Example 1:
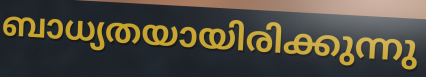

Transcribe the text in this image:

ബാധ്യതയായിരിക്കുന്നു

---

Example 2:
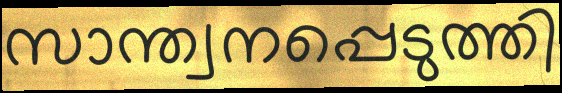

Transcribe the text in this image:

സാന്ത്വനപ്പെടുത്തി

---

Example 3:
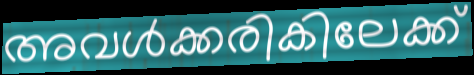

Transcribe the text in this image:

അവൾക്കരികിലേക്ക്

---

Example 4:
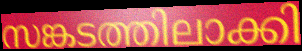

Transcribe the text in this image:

സങ്കടത്തിലാക്കി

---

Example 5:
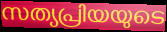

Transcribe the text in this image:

സത്യപ്രിയയുടെ